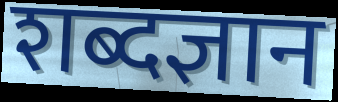
शब्दज्ञान